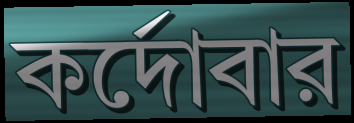
কর্দোবার